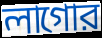
লাগোর